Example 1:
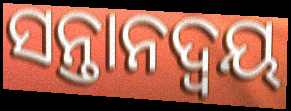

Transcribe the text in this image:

ସନ୍ତାନଦ୍ୱୟ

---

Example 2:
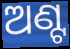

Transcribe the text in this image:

ଅଣ୍ଟ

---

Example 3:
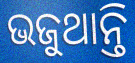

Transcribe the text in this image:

ଭଜୁଥାନ୍ତି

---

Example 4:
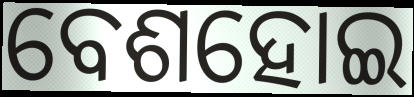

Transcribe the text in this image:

ବେଶହୋଇ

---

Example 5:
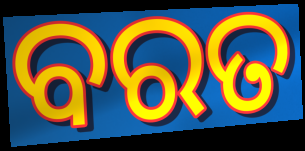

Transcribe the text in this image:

ବରତ